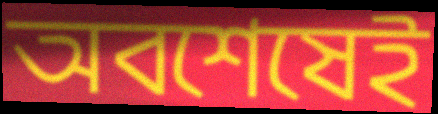
অবশেষেই